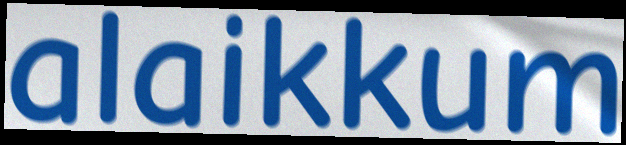
alaikkum